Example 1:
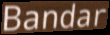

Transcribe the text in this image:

Bandar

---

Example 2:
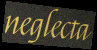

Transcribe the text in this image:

neglecta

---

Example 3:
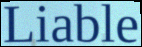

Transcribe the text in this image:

Liable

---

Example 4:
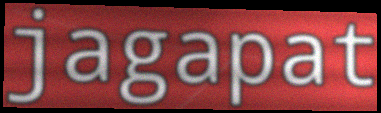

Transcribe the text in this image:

jagapat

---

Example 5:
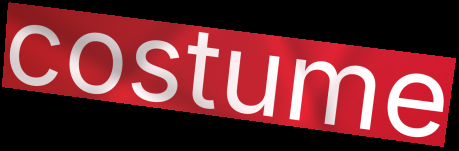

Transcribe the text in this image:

costume